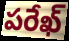
పరేఖ్